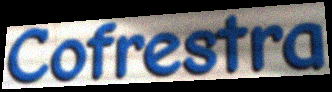
Cofrestra